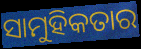
ସାମୁହିକତାର